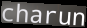
charun